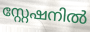
സ്റ്റേഷനിൽ